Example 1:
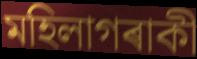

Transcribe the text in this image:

মহিলাগৰাকী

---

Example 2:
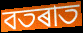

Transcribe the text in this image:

বতৰাত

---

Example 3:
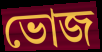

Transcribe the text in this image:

ভোজ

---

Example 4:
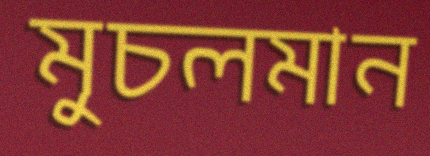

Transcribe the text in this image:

মুচলমান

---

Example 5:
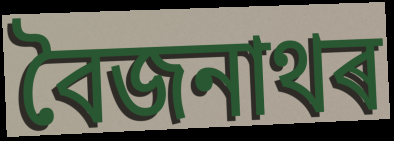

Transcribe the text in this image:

বৈজনাথৰ